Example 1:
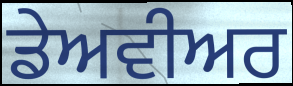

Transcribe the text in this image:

ਡੇਅਵੀਅਰ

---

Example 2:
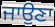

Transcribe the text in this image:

ਜਾਉਣਾ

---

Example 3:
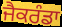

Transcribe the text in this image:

ਜੈਕਰੰਡਾ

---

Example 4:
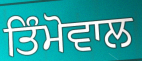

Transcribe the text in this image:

ਤਿੰਮੋਵਾਲ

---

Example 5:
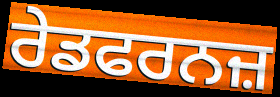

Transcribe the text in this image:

ਰੇਡਫਰਨਜ਼